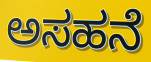
ಅಸಹನೆ